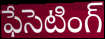
ఫేసెటింగ్